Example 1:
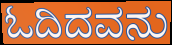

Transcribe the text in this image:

ಓದಿದವನು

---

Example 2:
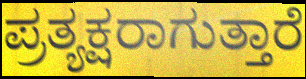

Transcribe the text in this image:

ಪ್ರತ್ಯಕ್ಷರಾಗುತ್ತಾರೆ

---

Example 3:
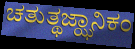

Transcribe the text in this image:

ಚತುತ್ಥಜ್ಝಾನಿಕಂ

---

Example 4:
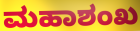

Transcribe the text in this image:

ಮಹಾಶಂಖ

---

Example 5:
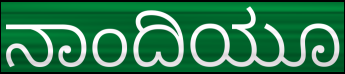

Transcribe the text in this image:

ನಾಂದಿಯೂ